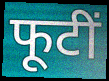
फूटीं